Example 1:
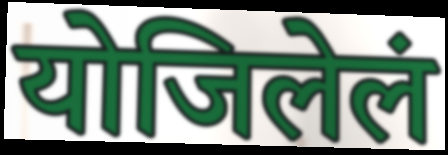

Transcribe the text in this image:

योजिलेलं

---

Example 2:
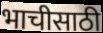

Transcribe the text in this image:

भाचीसाठी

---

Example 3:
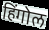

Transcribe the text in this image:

हिंगोल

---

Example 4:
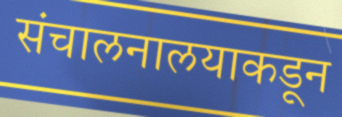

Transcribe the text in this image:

संचालनालयाकडून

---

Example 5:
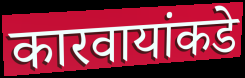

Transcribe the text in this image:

कारवायांकडे